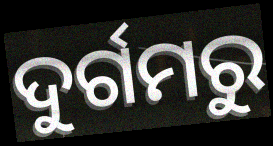
ଦୁର୍ଗମରୁ